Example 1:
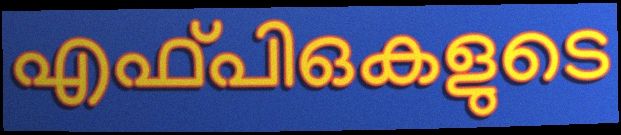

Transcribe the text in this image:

എഫ്പിഒകളുടെ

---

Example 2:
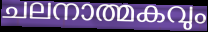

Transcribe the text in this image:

ചലനാത്മകവും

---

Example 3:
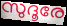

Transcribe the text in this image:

സുദൂരേ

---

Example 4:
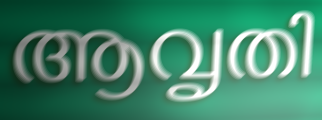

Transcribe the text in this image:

ആവൃതി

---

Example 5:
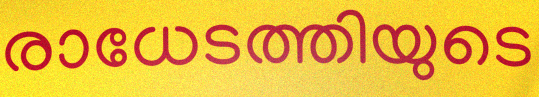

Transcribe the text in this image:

രാധേടത്തിയുടെ